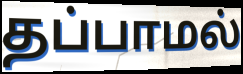
தப்பாமல்